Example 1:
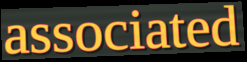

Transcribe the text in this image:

associated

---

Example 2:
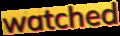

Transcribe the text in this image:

watched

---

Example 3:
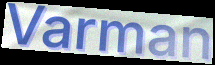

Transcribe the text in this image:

Varman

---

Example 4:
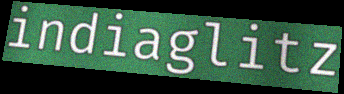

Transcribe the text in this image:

indiaglitz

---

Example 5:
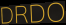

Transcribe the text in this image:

DRDO